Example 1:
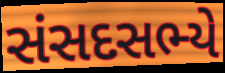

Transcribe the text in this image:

સંસદસભ્યે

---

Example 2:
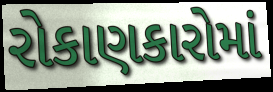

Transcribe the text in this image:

રોકાણકારોમાં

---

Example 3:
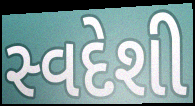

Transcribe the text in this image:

સ્વદેશી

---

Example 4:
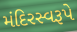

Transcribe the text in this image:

મંદિરસ્વરૂપે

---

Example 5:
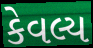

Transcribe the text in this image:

કેવલ્ય